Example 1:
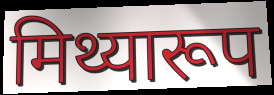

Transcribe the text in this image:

मिथ्यारूप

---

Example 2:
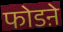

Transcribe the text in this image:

फोडऩे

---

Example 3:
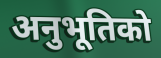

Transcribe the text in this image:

अनुभूतिको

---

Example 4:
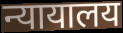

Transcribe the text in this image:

न्‍यायालय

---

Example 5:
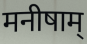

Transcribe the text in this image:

मनीषाम्